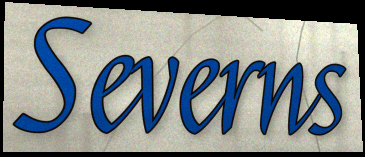
Severns